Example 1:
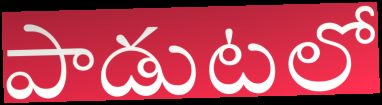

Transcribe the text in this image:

పాడుటలో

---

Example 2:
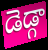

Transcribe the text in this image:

డెడ్గా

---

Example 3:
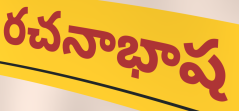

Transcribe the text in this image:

రచనాభాష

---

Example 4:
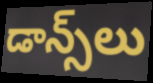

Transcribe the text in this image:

డాన్స్‌లు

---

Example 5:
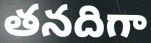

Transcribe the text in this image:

తనదిగా